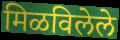
मिळविलेले